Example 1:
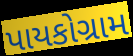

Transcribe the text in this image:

પાયકોગ્રામ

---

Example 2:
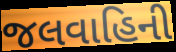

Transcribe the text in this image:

જલવાહિની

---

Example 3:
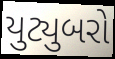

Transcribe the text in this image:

યુટ્યુબરો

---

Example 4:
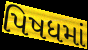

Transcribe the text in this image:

પિષધમાં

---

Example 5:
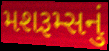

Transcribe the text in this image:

મશરૂમ્સનું